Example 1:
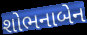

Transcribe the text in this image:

શોભનાબેન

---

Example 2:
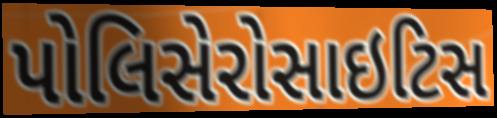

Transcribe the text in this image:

પોલિસેરોસાઇટિસ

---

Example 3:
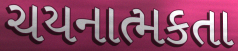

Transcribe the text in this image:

ચયનાત્મકતા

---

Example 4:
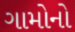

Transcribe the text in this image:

ગામોનો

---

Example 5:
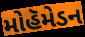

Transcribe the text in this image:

મોહૅમેડન